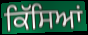
ਕਿੱਸਿਆਂ